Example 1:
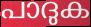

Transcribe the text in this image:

പാദുക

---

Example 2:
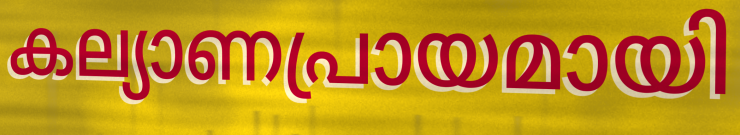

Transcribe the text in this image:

കല്യാണപ്രായമായി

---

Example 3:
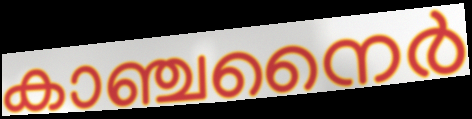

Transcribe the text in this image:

കാഞ്ചനൈർ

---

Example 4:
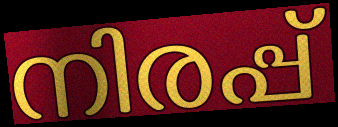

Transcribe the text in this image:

നിരപ്പ്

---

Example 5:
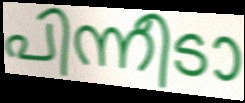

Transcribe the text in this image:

പിന്നീടാ